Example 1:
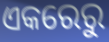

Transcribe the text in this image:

ଏକରେରୁ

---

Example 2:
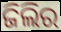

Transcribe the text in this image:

ଜିଲିର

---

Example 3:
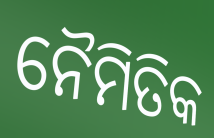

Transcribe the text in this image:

ନୈମିତିକ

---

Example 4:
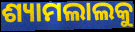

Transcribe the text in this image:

ଶ୍ୟାମଲାଲକୁ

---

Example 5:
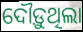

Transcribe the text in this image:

ଦୌଡ଼ୁଥିଲା